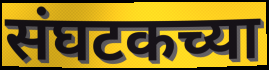
संघटकच्या